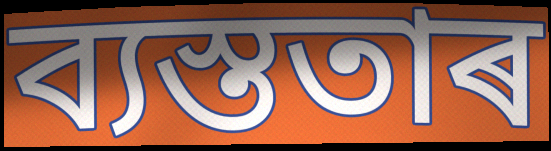
ব্যস্ততাৰ